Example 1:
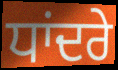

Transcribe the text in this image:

ਧਾਂਦਰੇ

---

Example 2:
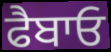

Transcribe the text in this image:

ਫੈਬਾਓ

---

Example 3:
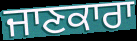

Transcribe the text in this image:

ਜਾਣਕਾਰਾ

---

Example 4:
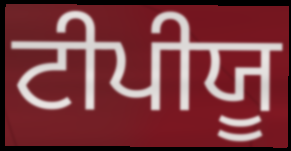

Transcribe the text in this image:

ਟੀਪੀਯੂ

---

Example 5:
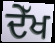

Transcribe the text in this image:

ਦੇੱਖ